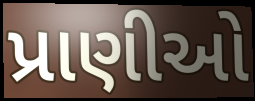
પ્રાણીઓ